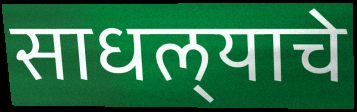
साधल्याचे